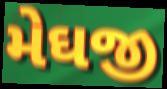
મેઘજી